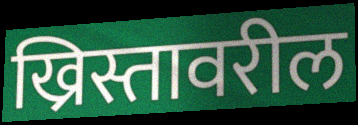
ख्रिस्तावरील